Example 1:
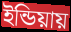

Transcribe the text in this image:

ইন্ডিয়ায়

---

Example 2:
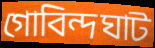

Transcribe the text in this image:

গোবিন্দঘাট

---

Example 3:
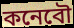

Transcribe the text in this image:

কনেবৌ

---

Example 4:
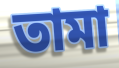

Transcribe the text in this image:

তামা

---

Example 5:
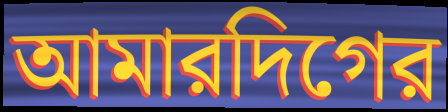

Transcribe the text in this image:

আমারদিগের